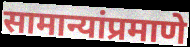
सामान्यांप्रमाणे